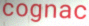
cognac